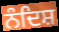
ਨੰਦਿਸ਼